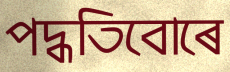
পদ্ধতিবোৰে